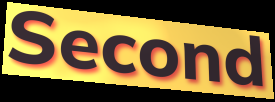
Second